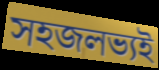
সহজলভ্যই